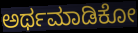
ಅರ್ಥಮಾಡಿಕೋ